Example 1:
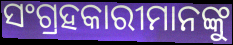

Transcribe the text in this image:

ସଂଗ୍ରହକାରୀମାନଙ୍କୁ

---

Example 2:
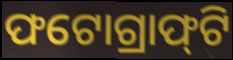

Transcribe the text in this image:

ଫଟୋଗ୍ରାଫ୍‌ଟି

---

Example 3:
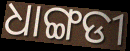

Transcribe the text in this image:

ଧାଙ୍ଗଡୀ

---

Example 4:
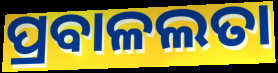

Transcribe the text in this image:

ପ୍ରବାଳଲତା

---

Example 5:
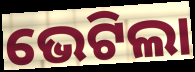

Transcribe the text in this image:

ଭେଟିଲା